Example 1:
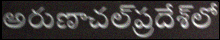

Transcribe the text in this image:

అరుణాచల్‌ప్రదేశ్‌లో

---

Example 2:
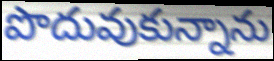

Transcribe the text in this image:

పొదువుకున్నాను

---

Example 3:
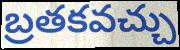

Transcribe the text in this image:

బ్రతకవచ్చు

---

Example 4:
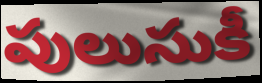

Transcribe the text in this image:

పులుసుకీ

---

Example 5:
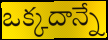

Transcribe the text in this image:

ఒక్కదాన్నే